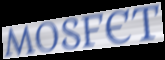
MOSFET